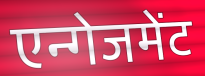
एन्गेजमेंट